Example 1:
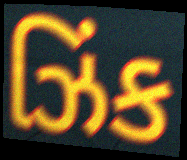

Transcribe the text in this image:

ઝિંક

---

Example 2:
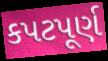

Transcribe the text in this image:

કપટપૂર્ણ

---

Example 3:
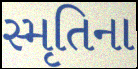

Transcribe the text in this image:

સ્મૃતિના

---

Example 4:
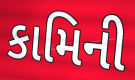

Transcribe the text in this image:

કામિની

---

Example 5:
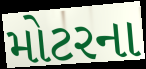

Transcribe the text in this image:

મોટરના